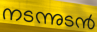
നടന്നുടൻ